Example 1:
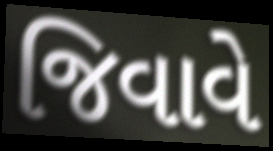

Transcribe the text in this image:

જિવાવે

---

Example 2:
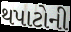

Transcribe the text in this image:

થપાટોની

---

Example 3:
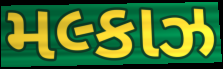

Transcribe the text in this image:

મલ્કાઝ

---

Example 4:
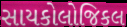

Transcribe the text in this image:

સાયકોલોજિકલ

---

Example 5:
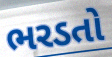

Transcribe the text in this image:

ભરડતો